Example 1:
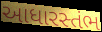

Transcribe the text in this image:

આધારસ્તંભ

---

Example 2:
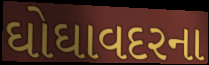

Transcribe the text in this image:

ઘોઘાવદરના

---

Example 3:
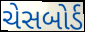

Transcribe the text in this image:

ચેસબોર્ડ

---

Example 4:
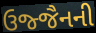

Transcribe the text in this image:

ઉજ્જૈનની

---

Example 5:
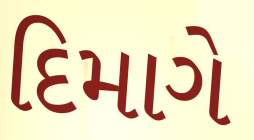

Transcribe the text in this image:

દિમાગે